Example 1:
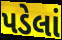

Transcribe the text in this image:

પડેલાં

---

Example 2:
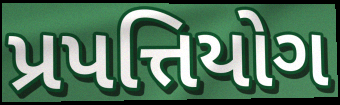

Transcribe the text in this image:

પ્રપત્તિયોગ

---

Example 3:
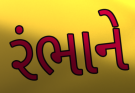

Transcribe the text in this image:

રંભાને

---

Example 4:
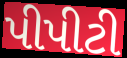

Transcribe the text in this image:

પીપીટી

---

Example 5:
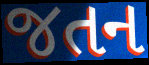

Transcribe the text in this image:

જતન